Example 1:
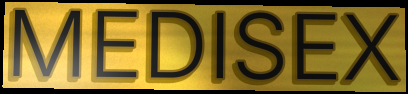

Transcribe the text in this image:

MEDISEX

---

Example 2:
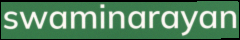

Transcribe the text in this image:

swaminarayan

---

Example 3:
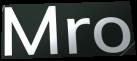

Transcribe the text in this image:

Mro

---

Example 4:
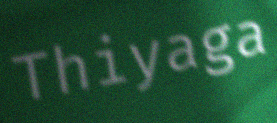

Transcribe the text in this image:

Thiyaga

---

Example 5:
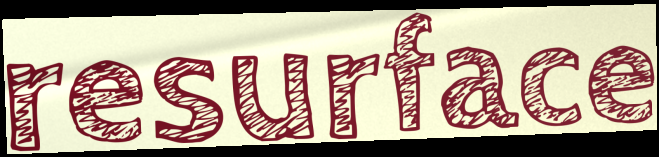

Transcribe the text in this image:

resurface